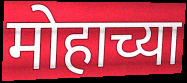
मोहाच्या